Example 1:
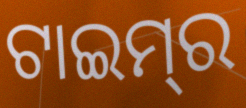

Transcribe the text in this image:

ଟାଇମ୍‌ର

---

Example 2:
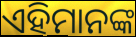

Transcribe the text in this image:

ଏହିମାନଙ୍କ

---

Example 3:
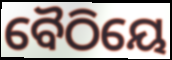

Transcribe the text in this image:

ବୈଠିୟେ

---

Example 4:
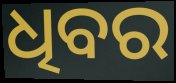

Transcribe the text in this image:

ଧିବର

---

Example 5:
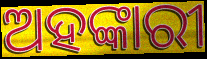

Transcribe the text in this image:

ଅହଙ୍କାରୀ